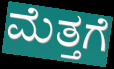
ಮೆತ್ತಗೆ